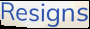
Resigns